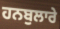
ਹਨਬੁਲਾਰੇ